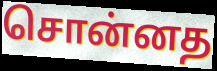
சொன்னத